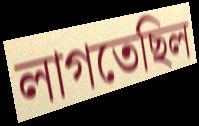
লাগতেছিল